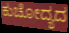
ಕುಚೋದ್ಯದ